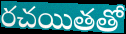
రచయితతో